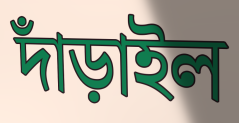
দাঁড়াইল